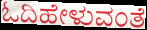
ಓದಿಹೇಳುವಂತೆ